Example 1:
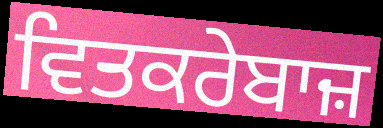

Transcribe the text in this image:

ਵਿਤਕਰੇਬਾਜ਼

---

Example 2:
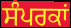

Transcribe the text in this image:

ਸੰਪਰਕਾਂ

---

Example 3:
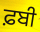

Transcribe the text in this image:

ਫ਼ਬੀ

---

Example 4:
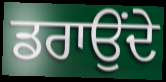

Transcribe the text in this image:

ਡਰਾਉਂਦੇ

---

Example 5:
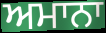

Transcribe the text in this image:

ਅਮਾਨਾ